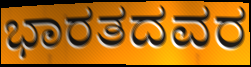
ಭಾರತದವರ